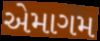
એમાગમ